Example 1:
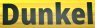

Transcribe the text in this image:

Dunkel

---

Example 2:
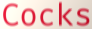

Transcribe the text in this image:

Cocks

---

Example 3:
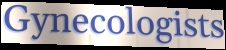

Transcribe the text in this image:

Gynecologists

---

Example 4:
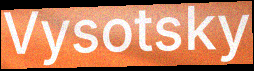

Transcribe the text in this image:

Vysotsky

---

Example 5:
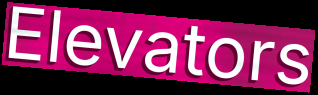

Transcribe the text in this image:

Elevators